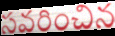
సవరించిన